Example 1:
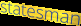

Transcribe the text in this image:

statesman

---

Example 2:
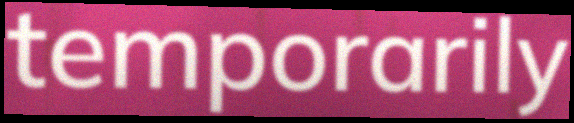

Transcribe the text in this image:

temporarily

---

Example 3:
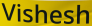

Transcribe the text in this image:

Vishesh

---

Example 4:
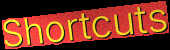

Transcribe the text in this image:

Shortcuts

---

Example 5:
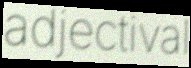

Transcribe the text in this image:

adjectival